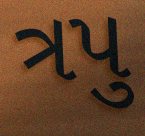
ત્રપુ